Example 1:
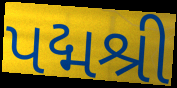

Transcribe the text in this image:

પદ્મશ્રી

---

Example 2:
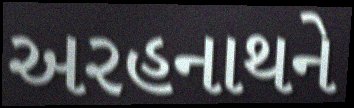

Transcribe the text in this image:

અરહનાથને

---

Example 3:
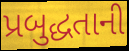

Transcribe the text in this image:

પ્રબુદ્ધતાની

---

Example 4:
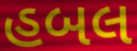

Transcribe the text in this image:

હબલ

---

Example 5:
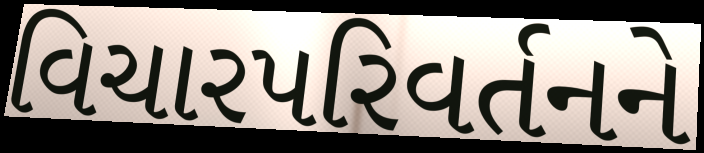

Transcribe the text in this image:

વિચારપરિવર્તનને